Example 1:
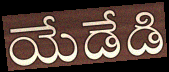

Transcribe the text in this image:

యేడేడి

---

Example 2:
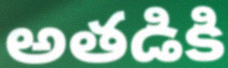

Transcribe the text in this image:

అతడికి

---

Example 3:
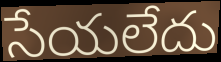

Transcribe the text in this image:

సేయలేదు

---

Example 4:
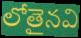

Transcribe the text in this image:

లోతైనవి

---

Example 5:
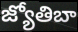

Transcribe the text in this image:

జ్యోతిబా